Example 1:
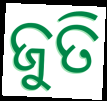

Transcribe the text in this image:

ଜୁତି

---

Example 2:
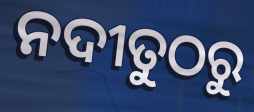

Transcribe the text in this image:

ନଦୀତୁଠରୁ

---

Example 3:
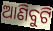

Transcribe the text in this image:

ଆଣିବୁଟି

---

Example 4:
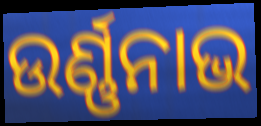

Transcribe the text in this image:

ଉର୍ଣ୍ଣନାଭ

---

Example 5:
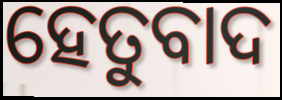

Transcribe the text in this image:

ହେତୁବାଦ